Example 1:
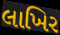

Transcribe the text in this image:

લાખિર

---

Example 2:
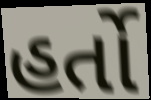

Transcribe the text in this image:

હર્તો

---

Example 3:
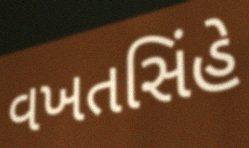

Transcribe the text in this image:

વખતસિંહે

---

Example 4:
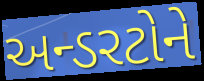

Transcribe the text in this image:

અન્ડરટોને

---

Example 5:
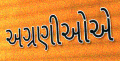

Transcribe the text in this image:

અગ્રણીઓએ